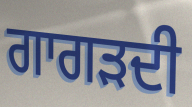
ਗਾਗੜਦੀ